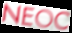
NEOC